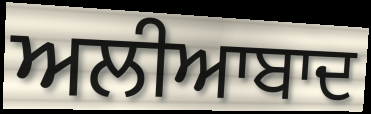
ਅਲੀਆਬਾਦ